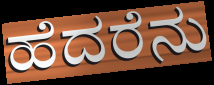
ಹೆದರೆನು